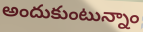
అందుకుంటున్నాం